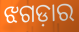
ଝଗଡ଼ାର